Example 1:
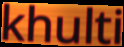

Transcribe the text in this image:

khulti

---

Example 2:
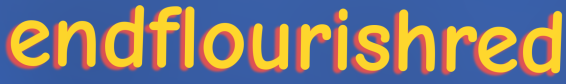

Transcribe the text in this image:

endflourishred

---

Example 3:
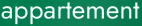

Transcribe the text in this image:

appartement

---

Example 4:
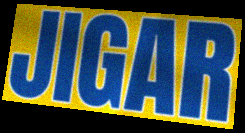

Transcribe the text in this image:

JIGAR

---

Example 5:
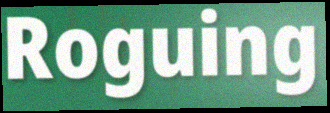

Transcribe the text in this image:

Roguing